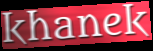
khanek